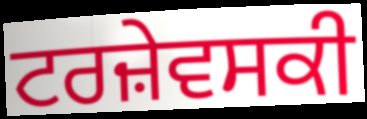
ਟਰਜ਼ੇਵਸਕੀ